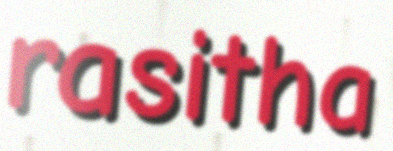
rasitha